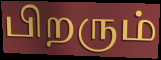
பிறரும்